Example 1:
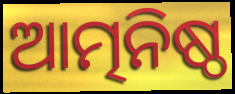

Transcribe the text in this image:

ଆତ୍ମନିଷ୍ଠ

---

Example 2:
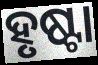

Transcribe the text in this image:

ହୃଷ୍ଟା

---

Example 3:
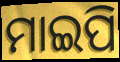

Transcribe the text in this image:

ମାଇପି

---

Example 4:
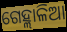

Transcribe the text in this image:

ଗେହ୍ଲାଳିଆ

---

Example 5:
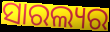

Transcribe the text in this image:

ସାରଲ୍ୟର